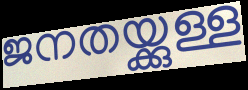
ജനതയ്ക്കുള്ള